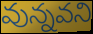
వున్నవని